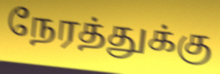
நேரத்துக்கு